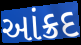
આંક્રદ